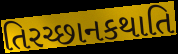
તિરચ્છાનકથાતિ